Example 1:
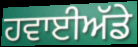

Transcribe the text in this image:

ਹਵਾਈਅੱਡੇ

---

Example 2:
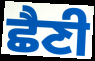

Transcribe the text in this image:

ਛੈਣੀ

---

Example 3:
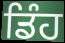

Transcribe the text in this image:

ਡਿੰਹ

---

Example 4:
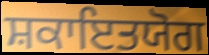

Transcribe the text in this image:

ਸ਼ਕਾਇਤਯੋਗ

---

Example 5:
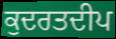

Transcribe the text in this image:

ਕੁਦਰਤਦੀਪ